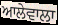
ਆਲੇਵਾਲਾ